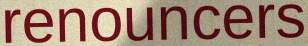
renouncers